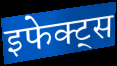
इफेक्ट्स